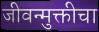
जीवन्मुक्तीचा